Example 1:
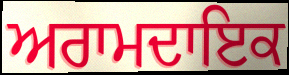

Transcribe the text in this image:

ਅਰਾਮਦਾਇਕ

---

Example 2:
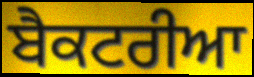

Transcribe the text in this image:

ਬੈਕਟਰੀਆ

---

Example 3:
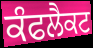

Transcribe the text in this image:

ਕੰਫਲੈਕਟ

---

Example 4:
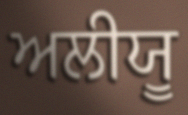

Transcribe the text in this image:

ਅਲੀਯੂ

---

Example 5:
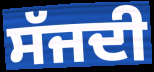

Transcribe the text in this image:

ਸੱਜਦੀ